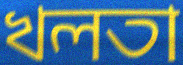
খলতা